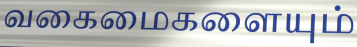
வகைமைகளையும்